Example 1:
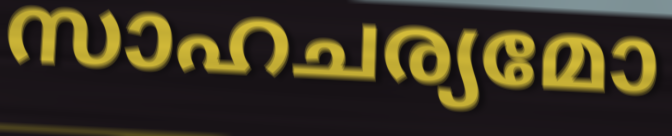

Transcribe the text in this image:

സാഹചര്യമോ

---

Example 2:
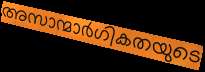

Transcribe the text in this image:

അസാന്മാർഗികതയുടെ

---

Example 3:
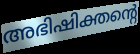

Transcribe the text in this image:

അഭിഷിക്തന്റെ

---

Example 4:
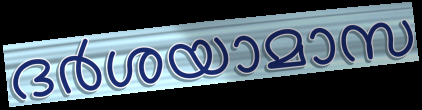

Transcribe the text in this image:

ദർശയാമാസ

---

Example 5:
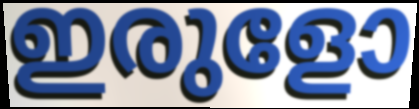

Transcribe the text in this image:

ഇരുളോ